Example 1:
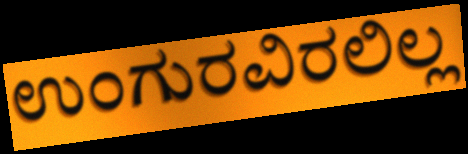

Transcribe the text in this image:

ಉಂಗುರವಿರಲಿಲ್ಲ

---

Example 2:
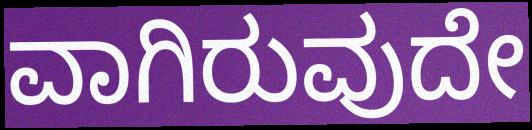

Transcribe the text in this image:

ವಾಗಿರುವುದೇ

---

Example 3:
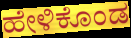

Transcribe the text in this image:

ಹೇಳಿಕೊಂಡ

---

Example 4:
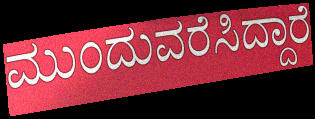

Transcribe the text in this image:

ಮುಂದುವರೆಸಿದ್ದಾರೆ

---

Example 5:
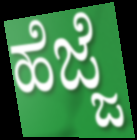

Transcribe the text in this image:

ಹೆಜ್ಜೆ